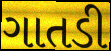
ગાતડી